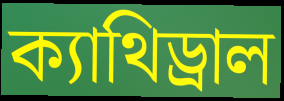
ক্যাথিড্রাল